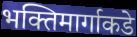
भक्तिमार्गाकडे